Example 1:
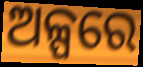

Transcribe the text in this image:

ଅଳ୍ପରେ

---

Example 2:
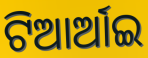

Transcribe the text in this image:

ଟିଆର୍ଆଇ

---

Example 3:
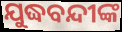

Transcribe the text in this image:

ଯୁଦ୍ଧବନ୍ଦୀଙ୍କ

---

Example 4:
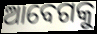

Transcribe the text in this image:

ଆବେଗକୁ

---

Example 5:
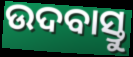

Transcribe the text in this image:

ଉଦବାସ୍ତୁ